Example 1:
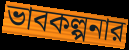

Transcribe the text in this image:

ভাবকল্পনার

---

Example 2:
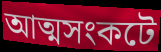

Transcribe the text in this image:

আত্মসংকটে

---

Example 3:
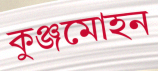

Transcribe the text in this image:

কুঞ্জমোহন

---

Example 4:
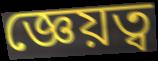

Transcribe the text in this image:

জ্ঞেয়ত্ব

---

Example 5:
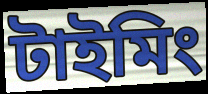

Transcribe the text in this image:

টাইমিং